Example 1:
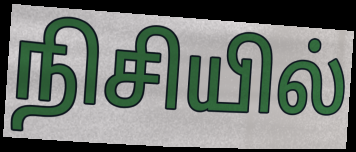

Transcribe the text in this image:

நிசியில்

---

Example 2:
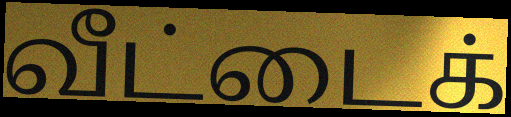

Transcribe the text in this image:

வீட்டைக்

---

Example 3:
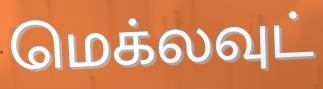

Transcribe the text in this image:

மெக்லவுட்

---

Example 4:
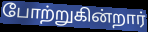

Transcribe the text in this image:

போற்றுகின்றார்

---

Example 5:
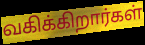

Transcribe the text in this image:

வகிக்கிறார்கள்